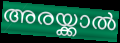
അരയ്ക്കാൽ